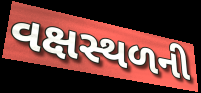
વક્ષસ્થળની